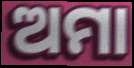
ଅମା